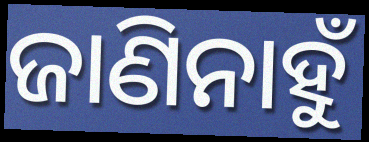
ଜାଣିନାହୁଁ